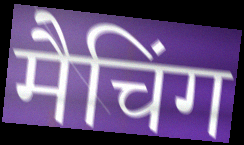
मैचिंग